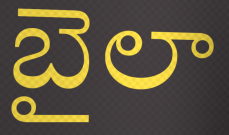
బైలా